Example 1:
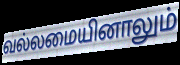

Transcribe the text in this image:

வல்லமையினாலும்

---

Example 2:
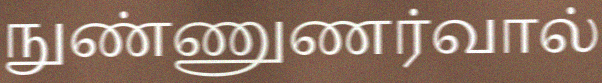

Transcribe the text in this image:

நுண்ணுணர்வால்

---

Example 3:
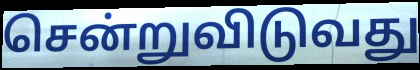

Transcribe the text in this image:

சென்றுவிடுவது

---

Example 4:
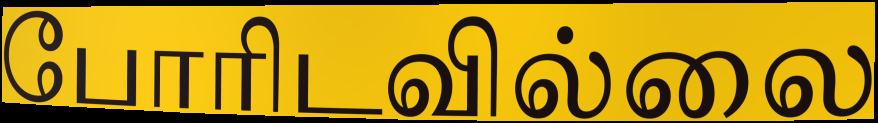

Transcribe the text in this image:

போரிடவில்லை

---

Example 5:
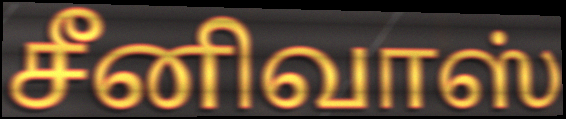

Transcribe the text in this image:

சீனிவாஸ்